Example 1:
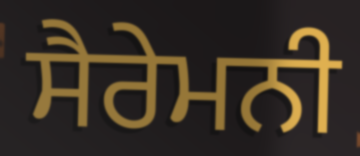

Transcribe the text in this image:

ਸੈਰੇਮਨੀ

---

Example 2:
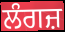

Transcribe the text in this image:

ਲੰਗਜ਼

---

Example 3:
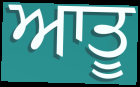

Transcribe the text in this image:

ਆਤੂ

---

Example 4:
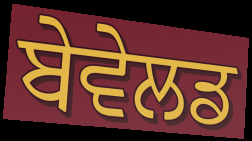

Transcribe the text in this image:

ਬੇਵੇਲਡ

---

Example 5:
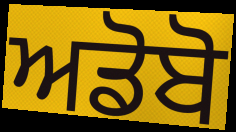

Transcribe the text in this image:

ਅਡੋਬੋ